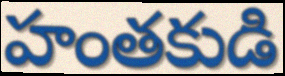
హంతకుడి